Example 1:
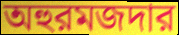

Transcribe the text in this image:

অহুরমজদার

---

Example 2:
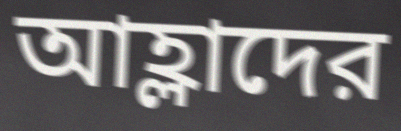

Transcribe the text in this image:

আহ্লাদের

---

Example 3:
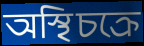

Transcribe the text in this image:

অস্থিচক্রে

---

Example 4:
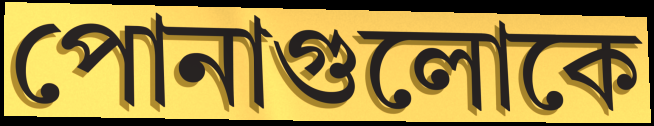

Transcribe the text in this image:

পোনাগুলোকে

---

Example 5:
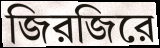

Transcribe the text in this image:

জিরজিরে